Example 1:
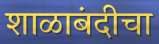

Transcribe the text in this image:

शाळाबंदीचा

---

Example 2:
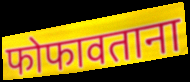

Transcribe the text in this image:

फोफावताना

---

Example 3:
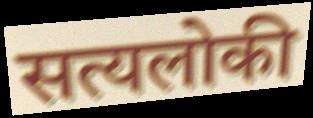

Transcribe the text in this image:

सत्यलोकी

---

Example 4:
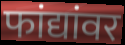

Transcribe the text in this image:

फांद्यांवर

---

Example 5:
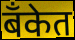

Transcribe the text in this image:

बँकेत